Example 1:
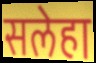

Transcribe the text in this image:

सलेहा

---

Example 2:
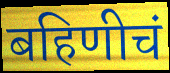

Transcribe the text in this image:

बहिणीचं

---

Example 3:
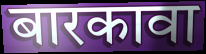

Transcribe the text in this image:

बारकावा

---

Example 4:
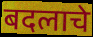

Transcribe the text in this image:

बदलाचे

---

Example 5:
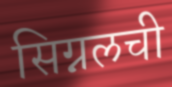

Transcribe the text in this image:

सिग्नलची